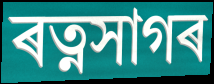
ৰত্নসাগৰ